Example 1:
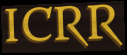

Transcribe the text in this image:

ICRR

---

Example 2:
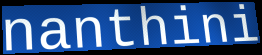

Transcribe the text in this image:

nanthini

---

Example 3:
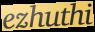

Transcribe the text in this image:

ezhuthi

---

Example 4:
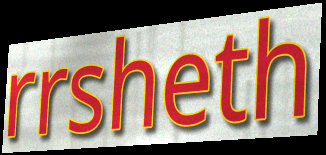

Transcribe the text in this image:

rrsheth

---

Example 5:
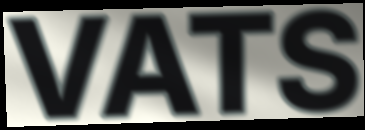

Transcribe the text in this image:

VATS